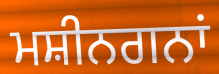
ਮਸ਼ੀਨਗਨਾਂ